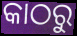
କାଠରୁ